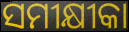
ସମୀକ୍ଷୀକା